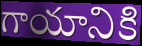
గాయానికి